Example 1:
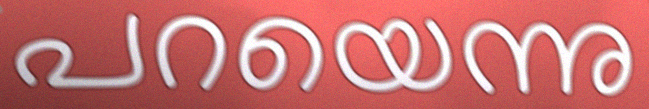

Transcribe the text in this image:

പറയെന്നു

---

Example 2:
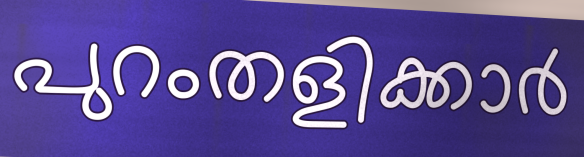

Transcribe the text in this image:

പുറംതളിക്കാർ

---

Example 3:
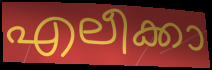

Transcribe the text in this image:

എലീക്കാ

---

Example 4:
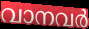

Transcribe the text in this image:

വാനവർ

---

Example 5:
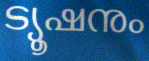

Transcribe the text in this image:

ട്യൂഷനും